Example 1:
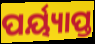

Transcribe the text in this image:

ପର୍ୟ୍ୟାପ୍ତ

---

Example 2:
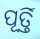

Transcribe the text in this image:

ପୂର୍ତ୍ତି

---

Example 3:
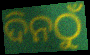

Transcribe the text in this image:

ଦିନଠୁଁ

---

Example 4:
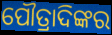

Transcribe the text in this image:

ପୌତ୍ରାଦିଙ୍କର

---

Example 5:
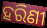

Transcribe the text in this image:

ହରିଣୀ